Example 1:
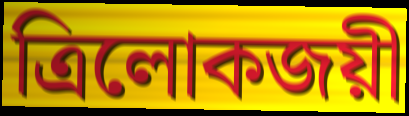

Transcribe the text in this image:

ত্রিলোকজয়ী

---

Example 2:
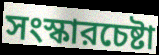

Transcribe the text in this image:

সংস্কারচেষ্টা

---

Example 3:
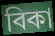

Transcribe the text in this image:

বিকা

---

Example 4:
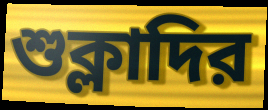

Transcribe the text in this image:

শুক্লাদির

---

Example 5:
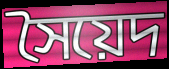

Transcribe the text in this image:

সৈয়েদ